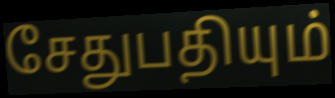
சேதுபதியும்